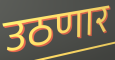
उठणार